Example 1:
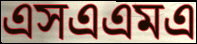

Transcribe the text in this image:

এসএএমএ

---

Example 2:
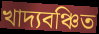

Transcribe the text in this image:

খাদ্যবঞ্চিত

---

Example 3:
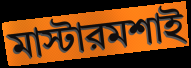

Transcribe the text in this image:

মাস্টারমশাই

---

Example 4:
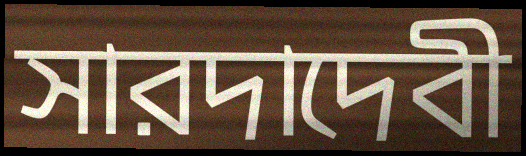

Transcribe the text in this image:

সারদাদেবী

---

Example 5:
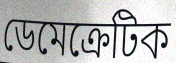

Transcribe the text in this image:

ডেমেক্রেটিক